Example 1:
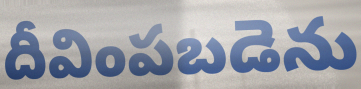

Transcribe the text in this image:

దీవింపబడెను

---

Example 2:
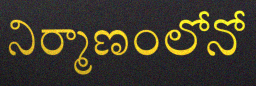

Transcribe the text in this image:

నిర్మాణంలోనో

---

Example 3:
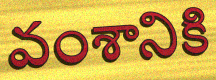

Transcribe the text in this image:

వంశానికి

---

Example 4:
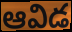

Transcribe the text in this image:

ఆవిడ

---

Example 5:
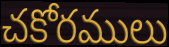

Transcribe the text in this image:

చకోరములు